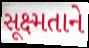
સૂક્ષ્મતાને